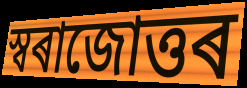
স্বৰাজোত্তৰ